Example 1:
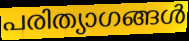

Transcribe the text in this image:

പരിത്യാഗങ്ങൾ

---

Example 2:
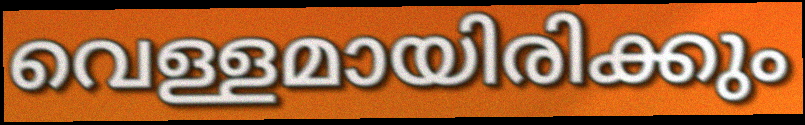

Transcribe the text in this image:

വെള്ളമായിരിക്കും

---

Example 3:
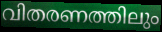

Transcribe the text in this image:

വിതരണത്തിലും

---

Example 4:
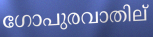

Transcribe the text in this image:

ഗോപുരവാതില്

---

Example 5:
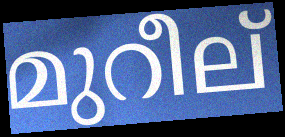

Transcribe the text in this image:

മുറീല്